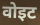
वोइट